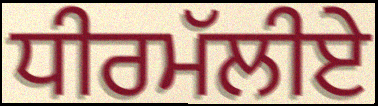
ਧੀਰਮੱਲੀਏ